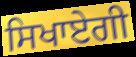
ਸਿਖਾਏਗੀ